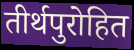
तीर्थपुरोहित